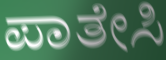
ಪಾತೇಸಿ